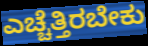
ಎಚ್ಚೆತ್ತಿರಬೇಕು